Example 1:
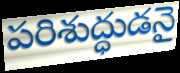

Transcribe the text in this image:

పరిశుద్ధుడనై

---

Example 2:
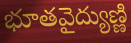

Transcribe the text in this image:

భూతవైద్యుణ్ణి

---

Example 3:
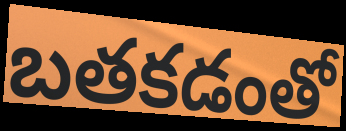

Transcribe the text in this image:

బతకడంతో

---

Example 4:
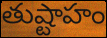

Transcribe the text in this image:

తుష్టాహం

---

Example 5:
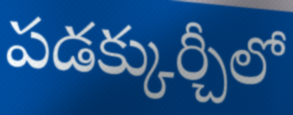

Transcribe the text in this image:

పడక్కుర్చీలో